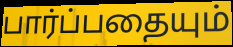
பார்ப்பதையும்